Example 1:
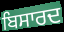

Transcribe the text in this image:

ਬਿਸਾਰਦ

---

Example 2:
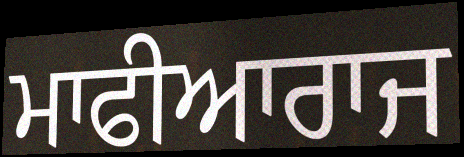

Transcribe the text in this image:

ਮਾਫੀਆਰਾਜ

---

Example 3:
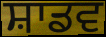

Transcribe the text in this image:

ਸ਼ਾਡਵ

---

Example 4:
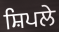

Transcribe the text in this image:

ਸ਼ਿਪਲੇ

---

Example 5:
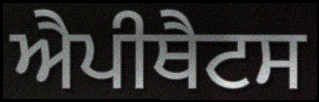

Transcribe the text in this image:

ਐਪੀਥੈਟਸ